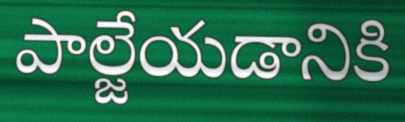
పాల్జేయడానికి